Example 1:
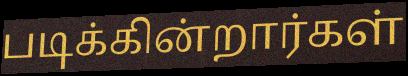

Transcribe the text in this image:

படிக்கின்றார்கள்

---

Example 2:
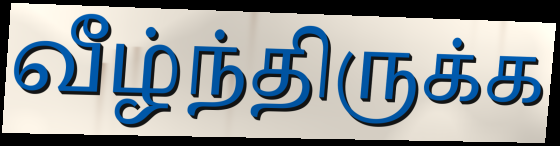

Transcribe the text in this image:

வீழ்ந்திருக்க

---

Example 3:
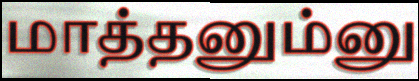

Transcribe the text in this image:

மாத்தனும்னு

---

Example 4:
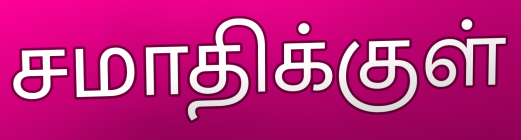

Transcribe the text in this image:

சமாதிக்குள்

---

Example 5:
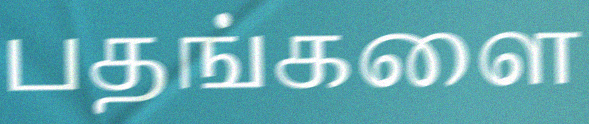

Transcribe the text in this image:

பதங்களை